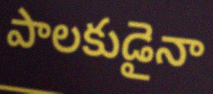
పాలకుడైనా